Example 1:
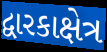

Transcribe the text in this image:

દ્વારકાક્ષેત્ર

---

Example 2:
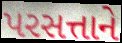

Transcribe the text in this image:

પરસત્તાને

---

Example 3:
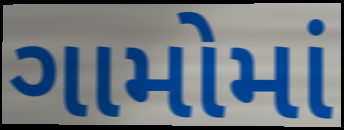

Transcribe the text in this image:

ગામોમાં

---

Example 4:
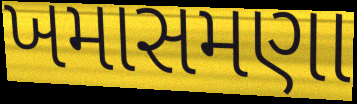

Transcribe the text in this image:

ખમાસમણા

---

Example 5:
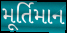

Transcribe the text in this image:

મૂર્તિમાન